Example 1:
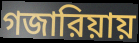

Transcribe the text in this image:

গজারিয়ায়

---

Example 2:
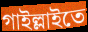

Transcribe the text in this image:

গাইল্লাইতে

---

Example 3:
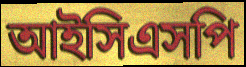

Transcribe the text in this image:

আইসিএসপি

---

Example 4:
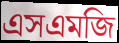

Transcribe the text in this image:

এসএমজি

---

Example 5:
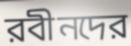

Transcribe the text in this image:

রবীনদের